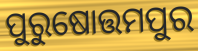
ପୁରୁଷୋତ୍ତମପୁର